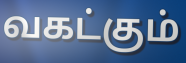
வகட்கும்